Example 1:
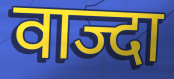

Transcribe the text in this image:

वाज्दा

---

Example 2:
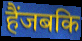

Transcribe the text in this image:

हैंजबकि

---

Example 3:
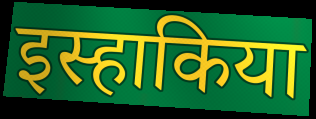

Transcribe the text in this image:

इस्हाकिया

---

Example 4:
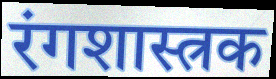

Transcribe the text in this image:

रंगशास्त्रक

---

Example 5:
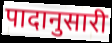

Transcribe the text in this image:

पादानुसारी